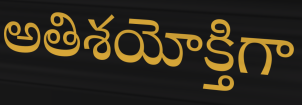
అతిశయోక్తిగా